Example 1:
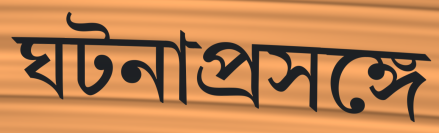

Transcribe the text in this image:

ঘটনাপ্রসঙ্গে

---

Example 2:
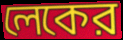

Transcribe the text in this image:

লেকের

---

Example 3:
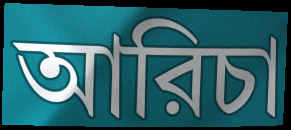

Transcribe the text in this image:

আরিচা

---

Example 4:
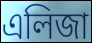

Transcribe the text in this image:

এলিজা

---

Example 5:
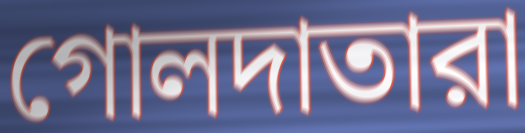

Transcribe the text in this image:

গোলদাতারা